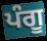
ਪੰਗੂ